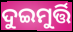
ଦୁଇମୁର୍ତ୍ତି